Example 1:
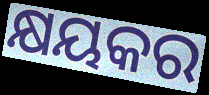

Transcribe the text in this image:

କ୍ଷୟକର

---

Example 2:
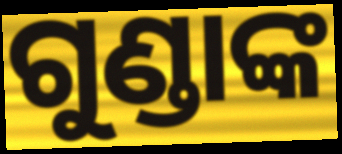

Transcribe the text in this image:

ଗୁଣ୍ଡାଙ୍କ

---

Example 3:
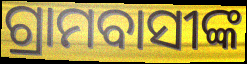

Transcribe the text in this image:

ଗ୍ରାମବାସୀଙ୍କ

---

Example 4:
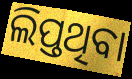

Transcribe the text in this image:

ଲିପ୍ତଥିବା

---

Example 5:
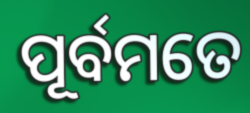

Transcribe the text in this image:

ପୂର୍ବମତେ